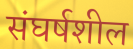
संघर्षशील